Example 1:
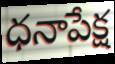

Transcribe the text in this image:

ధనాపేక్ష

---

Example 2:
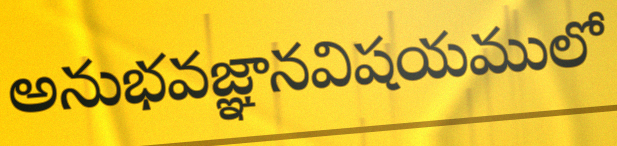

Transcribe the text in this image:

అనుభవజ్ఞానవిషయములో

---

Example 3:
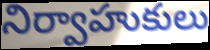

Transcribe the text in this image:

నిర్వాహుకులు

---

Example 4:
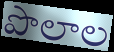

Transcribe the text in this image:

పొలాల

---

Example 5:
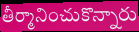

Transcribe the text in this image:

తీర్మానించుకొన్నారు